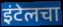
इंटेलचा